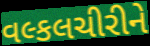
વલ્કલચીરીને